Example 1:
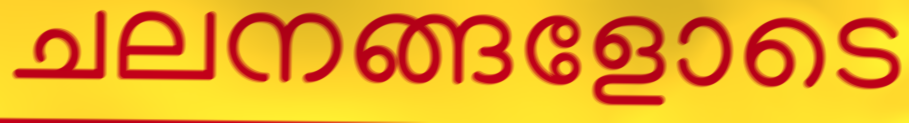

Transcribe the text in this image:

ചലനങ്ങളോടെ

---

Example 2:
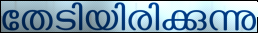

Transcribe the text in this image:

തേടിയിരിക്കുന്നു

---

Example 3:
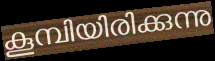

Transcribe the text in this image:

കൂമ്പിയിരിക്കുന്നു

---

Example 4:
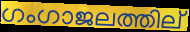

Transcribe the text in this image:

ഗംഗാജലത്തില്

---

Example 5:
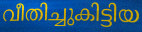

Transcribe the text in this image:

വീതിച്ചുകിട്ടിയ